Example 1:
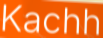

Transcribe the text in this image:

Kachh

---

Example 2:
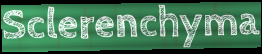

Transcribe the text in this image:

Sclerenchyma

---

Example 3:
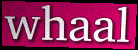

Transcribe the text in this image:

whaal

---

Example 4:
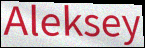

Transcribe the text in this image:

Aleksey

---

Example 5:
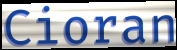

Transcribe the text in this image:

Cioran